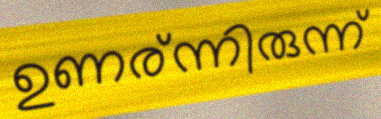
ഉണര്ന്നിരുന്ന്